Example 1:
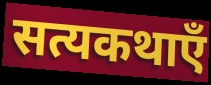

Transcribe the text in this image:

सत्यकथाएँ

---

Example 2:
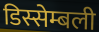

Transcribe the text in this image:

डिस्सेम्बली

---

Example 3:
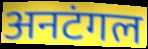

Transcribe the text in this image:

अनटंगल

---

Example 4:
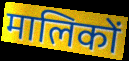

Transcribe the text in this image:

मालिकों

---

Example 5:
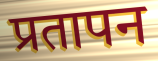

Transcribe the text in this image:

प्रतापन